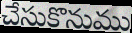
చేసుకొనుము